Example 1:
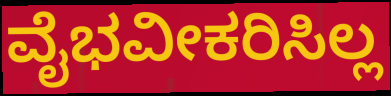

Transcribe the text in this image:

ವೈಭವೀಕರಿಸಿಲ್ಲ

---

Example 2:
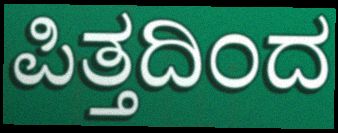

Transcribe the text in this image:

ಪಿತ್ತದಿಂದ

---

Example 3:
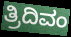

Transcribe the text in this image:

ತ್ರಿದಿವಂ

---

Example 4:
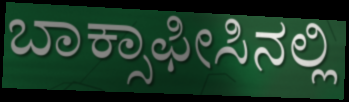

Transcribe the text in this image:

ಬಾಕ್ಸಾಫೀಸಿನಲ್ಲಿ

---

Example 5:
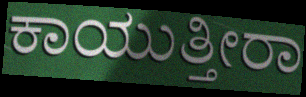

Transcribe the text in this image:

ಕಾಯುತ್ತೀರಾ